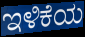
ಇಳಿಕೆಯ